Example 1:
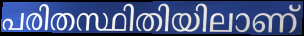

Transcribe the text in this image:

പരിതസ്ഥിതിയിലാണ്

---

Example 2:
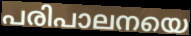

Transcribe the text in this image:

പരിപാലനയെ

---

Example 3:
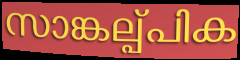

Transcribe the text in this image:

സാങ്കല്പ്പിക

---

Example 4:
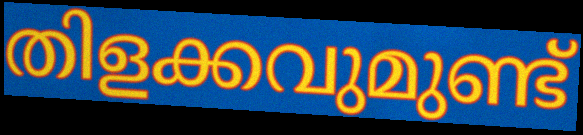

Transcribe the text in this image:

തിളക്കവുമുണ്ട്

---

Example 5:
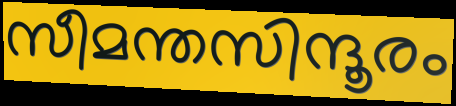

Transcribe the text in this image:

സീമന്തസിന്ദൂരം